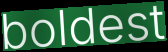
boldest